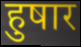
हुषार